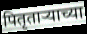
पितृताऱ्याच्या